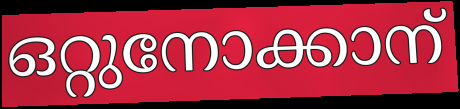
ഒറ്റുനോക്കാന്